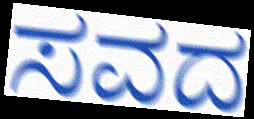
ಸವದ